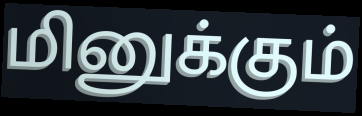
மினுக்கும்